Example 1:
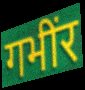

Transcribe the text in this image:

गभींर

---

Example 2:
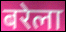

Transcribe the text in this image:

बरेला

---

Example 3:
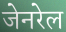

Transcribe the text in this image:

जेनरेल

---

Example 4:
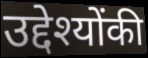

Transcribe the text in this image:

उद्देश्योंकी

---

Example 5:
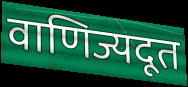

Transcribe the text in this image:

वाणिज्यदूत